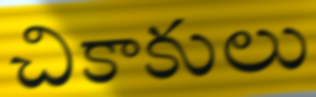
చికాకులు